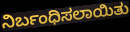
ನಿರ್ಬಂಧಿಸಲಾಯಿತು